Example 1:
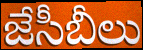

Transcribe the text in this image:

జేసీబీలు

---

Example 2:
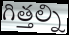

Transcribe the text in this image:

గిత్తల్ని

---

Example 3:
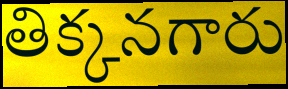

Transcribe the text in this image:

తిక్కనగారు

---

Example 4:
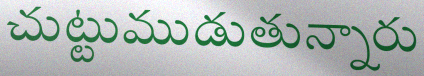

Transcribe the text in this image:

చుట్టుముడుతున్నారు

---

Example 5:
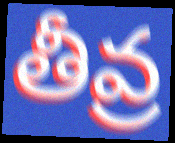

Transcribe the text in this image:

తీవ్ర